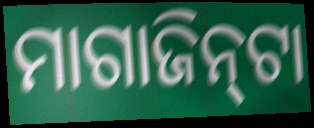
ମାଗାଜିନ୍‌ଟା